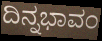
ದಿನ್ನಭಾವಂ